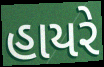
હાયરે